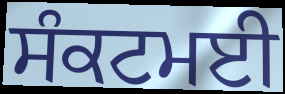
ਸੰਕਟਮਈ